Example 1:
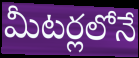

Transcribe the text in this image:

మీటర్లలోనే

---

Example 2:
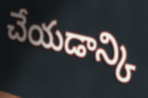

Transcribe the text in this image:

చేయడాన్కి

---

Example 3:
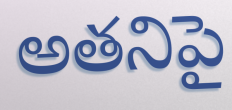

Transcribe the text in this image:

అతనిపై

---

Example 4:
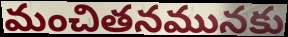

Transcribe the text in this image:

మంచితనమునకు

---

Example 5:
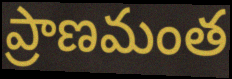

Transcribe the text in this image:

ప్రాణమంత